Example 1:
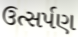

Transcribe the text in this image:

ઉત્સર્પણ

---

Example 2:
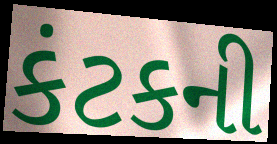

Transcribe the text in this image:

કંટકની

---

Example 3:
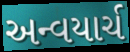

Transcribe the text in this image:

અન્વયાર્ચ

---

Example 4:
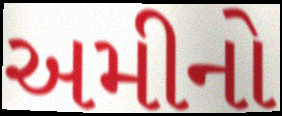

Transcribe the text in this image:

અમીનો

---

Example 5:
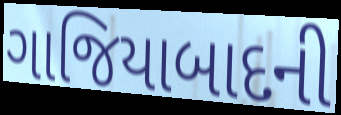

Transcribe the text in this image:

ગાજિયાબાદની